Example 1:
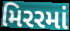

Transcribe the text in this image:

મિરરમાં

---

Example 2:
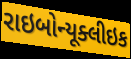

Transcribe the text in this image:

રાઇબોન્યૂક્લીઇક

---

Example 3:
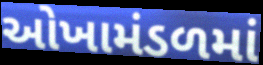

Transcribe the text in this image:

ઓખામંડળમાં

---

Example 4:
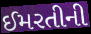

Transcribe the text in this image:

ઈમરતીની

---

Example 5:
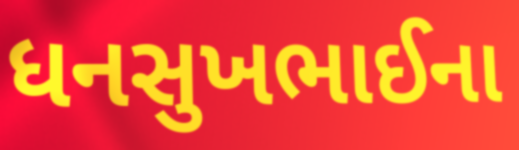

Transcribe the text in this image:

ધનસુખભાઈના